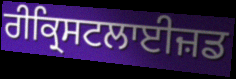
ਰੀਕ੍ਰਿਸਟਲਾਈਜ਼ਡ